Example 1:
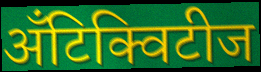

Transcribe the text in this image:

अँटिक्विटीज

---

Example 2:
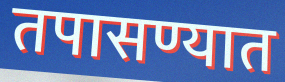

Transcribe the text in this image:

तपासण्यात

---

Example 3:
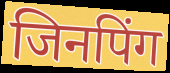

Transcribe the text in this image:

जिनपिंग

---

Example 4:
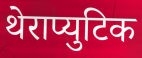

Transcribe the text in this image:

थेराप्युटिक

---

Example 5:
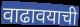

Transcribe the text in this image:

वाढावयाची